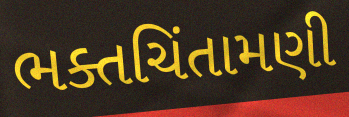
ભક્તચિંતામણી